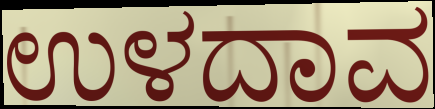
ಉಳದಾವ